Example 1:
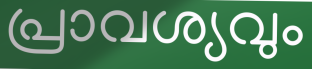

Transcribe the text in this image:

പ്രാവശ്യവും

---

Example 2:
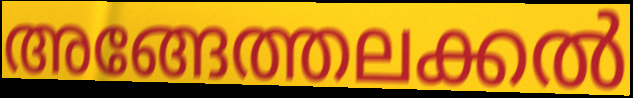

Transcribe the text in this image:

അങ്ങേത്തലക്കൽ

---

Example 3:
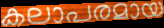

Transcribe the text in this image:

കലാപരമായ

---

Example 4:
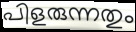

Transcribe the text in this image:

പിളരുന്നതും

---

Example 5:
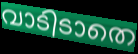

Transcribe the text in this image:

വാടിടാതെ